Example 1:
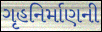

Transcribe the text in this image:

ગૃહનિર્માણની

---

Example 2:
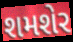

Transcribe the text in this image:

શમશેર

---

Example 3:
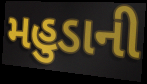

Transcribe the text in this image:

મહુડાની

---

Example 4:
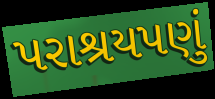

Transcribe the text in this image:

પરાશ્રયપણું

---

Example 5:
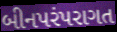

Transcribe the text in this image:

બીનપરંપરાગત